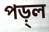
পড়্ল